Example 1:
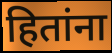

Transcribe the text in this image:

हितांना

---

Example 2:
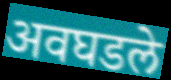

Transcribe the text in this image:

अवघडले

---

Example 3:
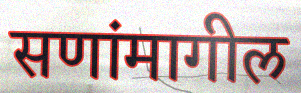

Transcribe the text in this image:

सणांमागील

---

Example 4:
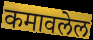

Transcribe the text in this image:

कमावलेल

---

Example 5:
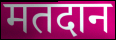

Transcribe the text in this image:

मतदान